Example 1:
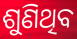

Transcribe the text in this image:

ଶୁଣିଥିବ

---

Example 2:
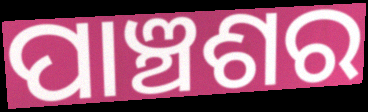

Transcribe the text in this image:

ପାଞ୍ଚଶର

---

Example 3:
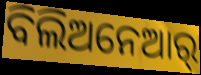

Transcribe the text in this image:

ବିଲିଅନେଆର୍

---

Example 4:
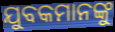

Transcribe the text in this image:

ଯୁବକମାନଙ୍କୁ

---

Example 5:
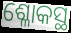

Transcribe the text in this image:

ଶ୍ଳୋକସ୍ଥ